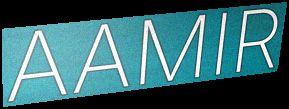
AAMIR